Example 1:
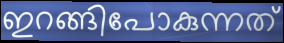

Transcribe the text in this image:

ഇറങ്ങിപോകുന്നത്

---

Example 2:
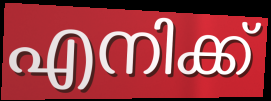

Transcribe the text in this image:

എനിക്ക്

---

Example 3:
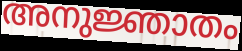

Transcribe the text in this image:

അനുജ്ഞാതം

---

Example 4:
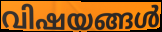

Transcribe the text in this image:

വിഷയങ്ങൾ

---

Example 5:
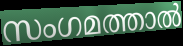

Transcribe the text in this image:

സംഗമത്താൽ